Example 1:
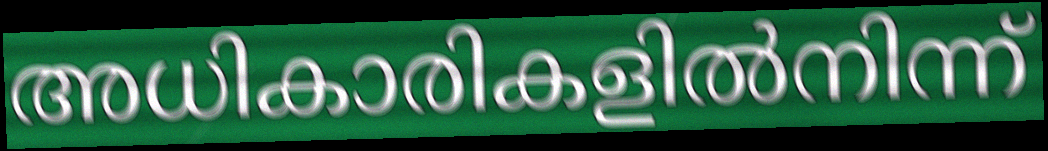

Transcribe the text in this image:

അധികാരികളിൽനിന്ന്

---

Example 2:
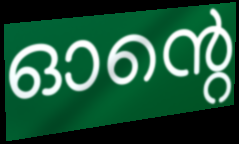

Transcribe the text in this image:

ഓന്റെ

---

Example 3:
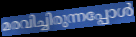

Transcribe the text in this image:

മരവിച്ചിരുന്നപ്പോൾ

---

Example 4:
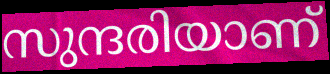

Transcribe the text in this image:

സുന്ദരിയാണ്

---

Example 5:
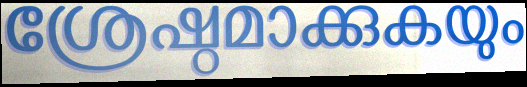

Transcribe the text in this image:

ശ്രേഷ്ഠമാക്കുകയും